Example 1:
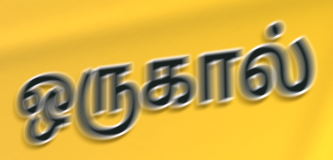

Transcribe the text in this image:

ஒருகால்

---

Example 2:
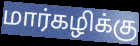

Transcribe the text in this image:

மார்கழிக்கு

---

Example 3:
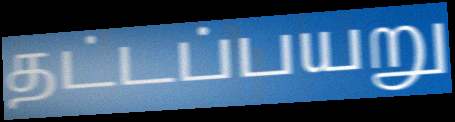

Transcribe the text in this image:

தட்டப்பயறு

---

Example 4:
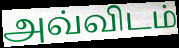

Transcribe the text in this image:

அவ்விடம்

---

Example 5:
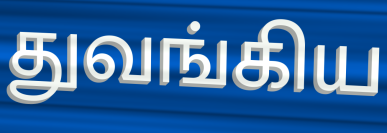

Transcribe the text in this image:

துவங்கிய